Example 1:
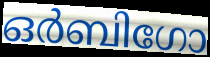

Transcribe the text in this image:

ഒർബിഗോ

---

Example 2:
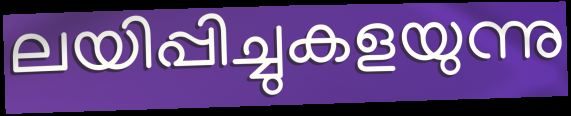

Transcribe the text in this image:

ലയിപ്പിച്ചുകളയുന്നു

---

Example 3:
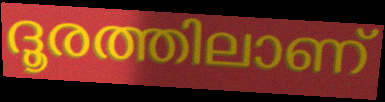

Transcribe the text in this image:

ദൂരത്തിലാണ്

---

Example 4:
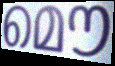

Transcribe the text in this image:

മൌ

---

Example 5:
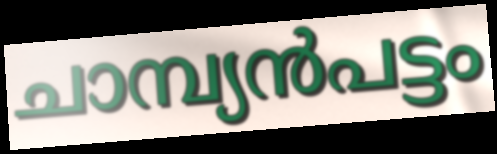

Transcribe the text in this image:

ചാമ്പ്യൻപട്ടം